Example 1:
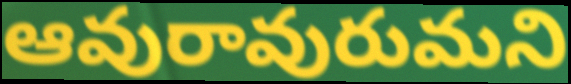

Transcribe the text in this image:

ఆవురావురుమని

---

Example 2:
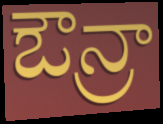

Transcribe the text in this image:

ఔన్రా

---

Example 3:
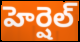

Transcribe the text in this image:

హెర్షెల్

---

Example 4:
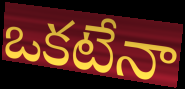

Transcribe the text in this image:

ఒకటేనా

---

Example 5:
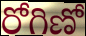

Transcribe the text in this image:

రోగిణో